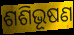
ଶଶିଭୂଷଣ